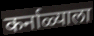
कर्नाळ्याला